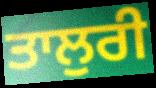
ਤਾਲੁਰੀ